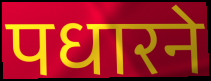
पधारने